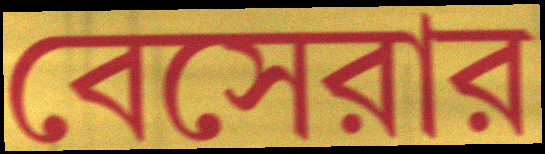
বেসেরার